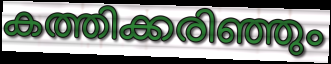
കത്തിക്കരിഞ്ഞും